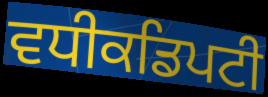
ਵਧੀਕਡਿਪਟੀ